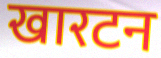
खारटन